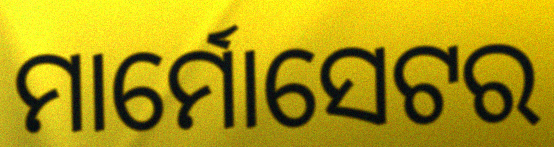
ମାର୍ମୋସେଟର